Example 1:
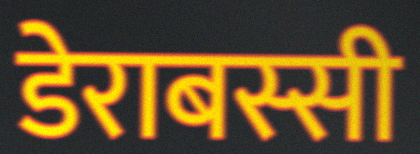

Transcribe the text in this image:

डेराबस्सी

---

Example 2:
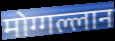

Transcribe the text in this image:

मोग्गल्लान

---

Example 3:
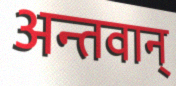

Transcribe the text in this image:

अन्तवान्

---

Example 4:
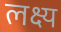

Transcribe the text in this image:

लक्ष्‍य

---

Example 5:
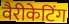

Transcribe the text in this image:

वैरीकेटिंग